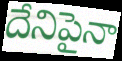
దేనిపైనా